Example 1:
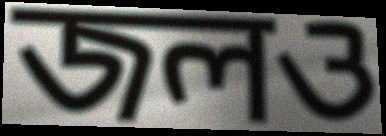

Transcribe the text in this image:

জলও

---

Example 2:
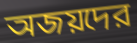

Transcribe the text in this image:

অজয়দের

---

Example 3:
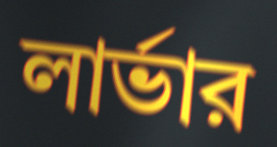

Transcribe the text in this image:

লার্ভার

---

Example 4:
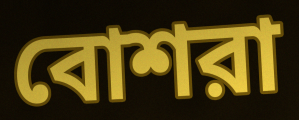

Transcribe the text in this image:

বোশরা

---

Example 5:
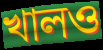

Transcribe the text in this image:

খালও